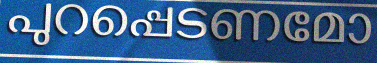
പുറപ്പെടണമോ